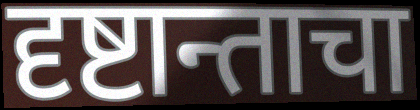
दृष्टान्ताचा